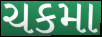
ચકમા